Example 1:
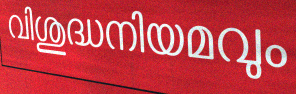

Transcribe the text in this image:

വിശുദ്ധനിയമവും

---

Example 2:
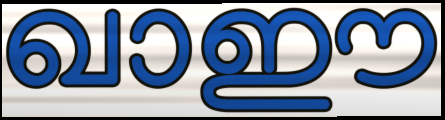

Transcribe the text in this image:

ഖാഈ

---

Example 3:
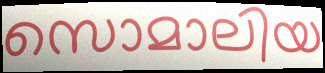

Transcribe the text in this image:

സൊമാലിയ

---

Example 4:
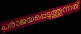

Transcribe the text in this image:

പരാജയപ്പെടുത്തുന്നത്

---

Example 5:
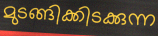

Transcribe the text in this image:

മുടങ്ങിക്കിടക്കുന്ന